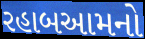
રહાબઆમનો